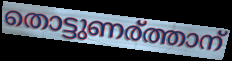
തൊട്ടുണര്ത്താന്